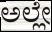
ಅಲ್ಲೇ